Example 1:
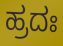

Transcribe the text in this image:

ಹ್ರದಃ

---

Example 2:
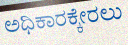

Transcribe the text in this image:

ಅಧಿಕಾರಕ್ಕೇರಲು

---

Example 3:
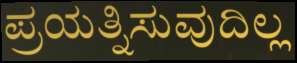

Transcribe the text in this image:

ಪ್ರಯತ್ನಿಸುವುದಿಲ್ಲ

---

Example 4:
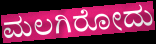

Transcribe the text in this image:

ಮಲಗಿರೋದು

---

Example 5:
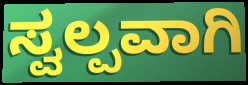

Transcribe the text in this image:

ಸ್ವಲ್ಪವಾಗಿ